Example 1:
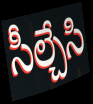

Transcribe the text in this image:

సీల్చేసి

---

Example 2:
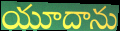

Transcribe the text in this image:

యూదాను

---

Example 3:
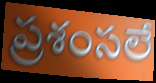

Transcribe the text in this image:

ప్రశంసలే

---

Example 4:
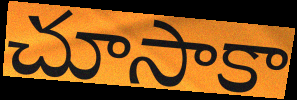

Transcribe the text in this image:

చూసాకా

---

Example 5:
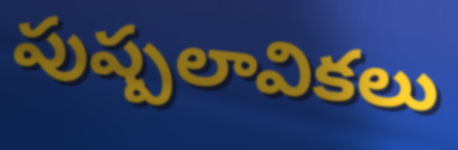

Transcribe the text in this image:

పుష్పలావికలు